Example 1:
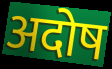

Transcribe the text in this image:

अदोष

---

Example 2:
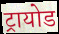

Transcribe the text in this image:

ट्रायोड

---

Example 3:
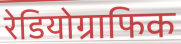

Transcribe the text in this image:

रेडियोग्राफिक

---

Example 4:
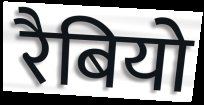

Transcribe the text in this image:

रैबियो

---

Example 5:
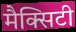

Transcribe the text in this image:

मैक्सिटी